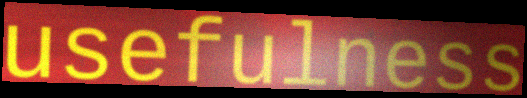
usefulness